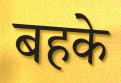
बहके